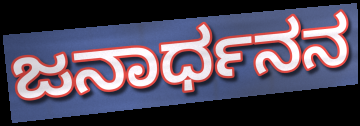
ಜನಾರ್ಧನನ